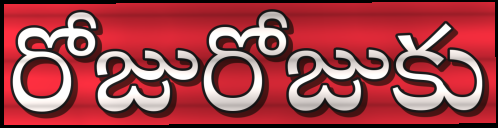
రోజురోజుకు